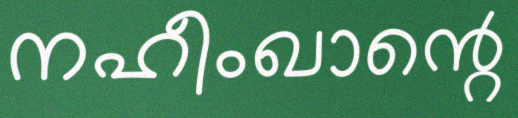
നഹീംഖാന്റെ